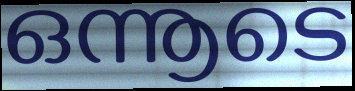
ഒന്നൂടെ